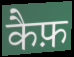
कैफ़